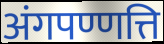
अंगपण्णत्ति